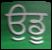
ਉਡੂ